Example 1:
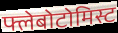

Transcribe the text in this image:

फ्लेबोटोमिस्ट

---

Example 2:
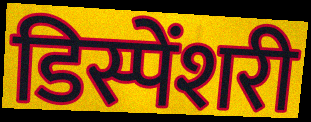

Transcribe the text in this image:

डिस्पेंशरी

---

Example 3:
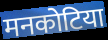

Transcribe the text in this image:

मनकोटिया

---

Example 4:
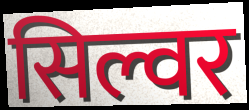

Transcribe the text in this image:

सिल्वर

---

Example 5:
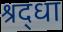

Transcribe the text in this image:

श्रद्धा